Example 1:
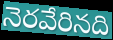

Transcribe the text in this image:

నెరవేరినది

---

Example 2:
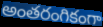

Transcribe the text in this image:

అంతరంగికంగా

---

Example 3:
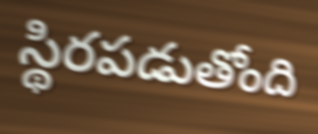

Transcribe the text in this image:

స్థిరపడుతోంది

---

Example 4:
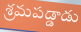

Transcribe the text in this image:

శ్రమపడ్డాడు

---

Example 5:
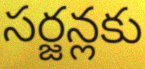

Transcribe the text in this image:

సర్జన్లకు